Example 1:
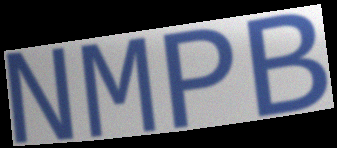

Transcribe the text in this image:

NMPB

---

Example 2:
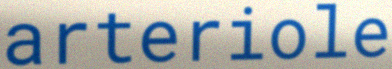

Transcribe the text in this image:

arteriole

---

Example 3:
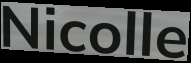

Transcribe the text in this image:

Nicolle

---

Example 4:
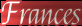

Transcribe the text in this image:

Frances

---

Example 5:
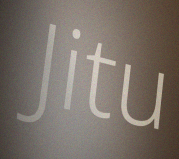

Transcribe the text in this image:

Jitu